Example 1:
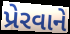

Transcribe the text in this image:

પ્રેરવાને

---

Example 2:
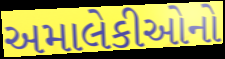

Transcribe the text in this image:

અમાલેકીઓનો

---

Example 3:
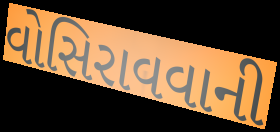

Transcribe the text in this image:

વોસિરાવવાની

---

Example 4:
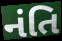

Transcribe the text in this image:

નંતિ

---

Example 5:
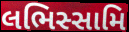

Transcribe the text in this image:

લભિસ્સામિ